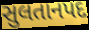
સુલતાનપદ